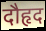
दौहृद